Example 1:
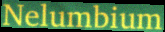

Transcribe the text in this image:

Nelumbium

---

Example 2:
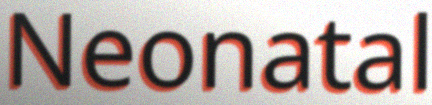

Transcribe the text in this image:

Neonatal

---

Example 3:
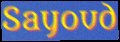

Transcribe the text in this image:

Sayoud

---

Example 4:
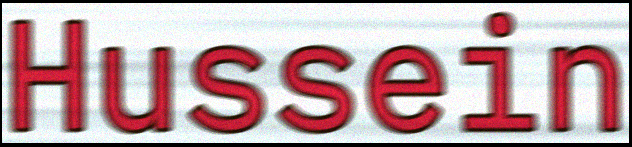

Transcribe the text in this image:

Hussein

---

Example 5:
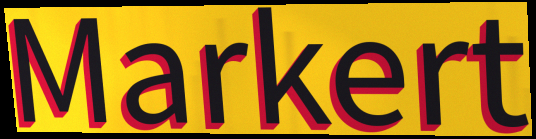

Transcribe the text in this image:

Markert